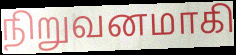
நிறுவனமாகி